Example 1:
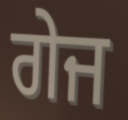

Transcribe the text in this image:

ਗੇਜ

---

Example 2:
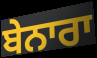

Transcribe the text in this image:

ਬੇਨਾਰਾ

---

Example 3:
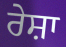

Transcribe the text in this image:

ਰੇਸ਼ਾ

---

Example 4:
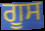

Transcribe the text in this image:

ਗੂਸ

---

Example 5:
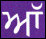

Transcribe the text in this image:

ਆੱ